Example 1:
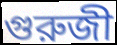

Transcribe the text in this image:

গুরুজী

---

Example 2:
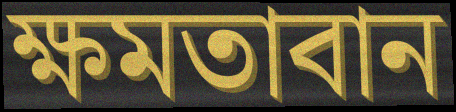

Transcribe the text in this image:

ক্ষমতাবান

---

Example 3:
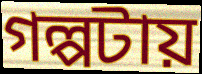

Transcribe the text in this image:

গল্পটায়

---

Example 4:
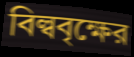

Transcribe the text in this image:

বিল্ববৃক্ষের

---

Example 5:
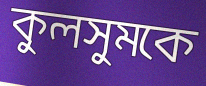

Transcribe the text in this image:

কুলসুমকে